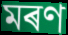
মৰণ